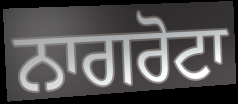
ਨਾਗਰੋਟਾ